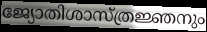
ജ്യോതിശാസ്ത്രജ്ഞനും